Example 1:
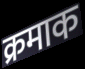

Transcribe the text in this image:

क्रमाक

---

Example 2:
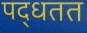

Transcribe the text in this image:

पद्धतत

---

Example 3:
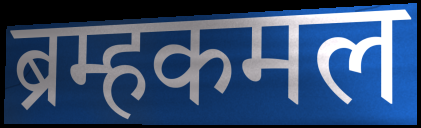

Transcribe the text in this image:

ब्रम्हकमल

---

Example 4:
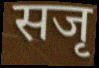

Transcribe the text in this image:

सजृ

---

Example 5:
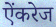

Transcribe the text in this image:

ऐंकरेज